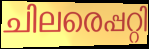
ചിലരെപ്പറ്റി